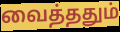
வைத்ததும்